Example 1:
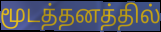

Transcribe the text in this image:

மூடத்தனத்தில்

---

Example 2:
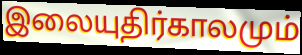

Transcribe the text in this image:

இலையுதிர்காலமும்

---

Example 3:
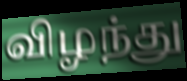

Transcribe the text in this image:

விழந்து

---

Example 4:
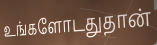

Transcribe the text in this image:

உங்களோடதுதான்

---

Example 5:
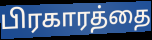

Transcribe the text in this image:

பிரகாரத்தை